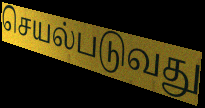
செயல்படுவது